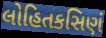
લોહિતકસિણં